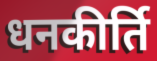
धनकीर्ति